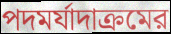
পদমর্যাদাক্রমের